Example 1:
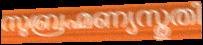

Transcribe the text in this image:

സുബ്രഹ്മണ്യസ്തുതി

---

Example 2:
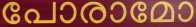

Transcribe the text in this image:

പോരാമോ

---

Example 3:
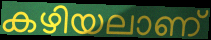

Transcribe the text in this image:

കഴിയലാണ്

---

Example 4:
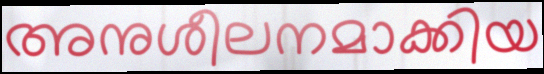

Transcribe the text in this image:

അനുശീലനമാക്കിയ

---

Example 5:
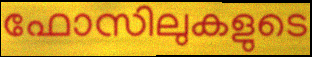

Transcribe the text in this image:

ഫോസിലുകളുടെ